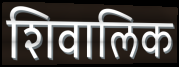
शिवालिक